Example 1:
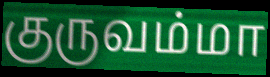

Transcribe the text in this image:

குருவம்மா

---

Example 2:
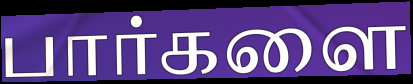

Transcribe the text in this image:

பார்களை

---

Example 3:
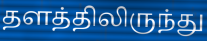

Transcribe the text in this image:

தளத்திலிருந்து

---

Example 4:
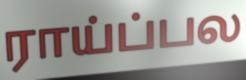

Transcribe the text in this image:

ராய்ப்பல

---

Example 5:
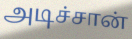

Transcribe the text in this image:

அடிச்சான்